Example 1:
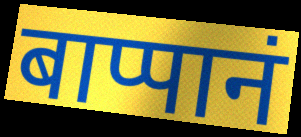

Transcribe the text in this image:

बाप्पानं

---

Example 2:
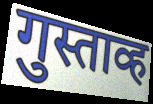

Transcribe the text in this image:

गुस्ताव्ह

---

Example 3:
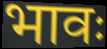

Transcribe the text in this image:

भावः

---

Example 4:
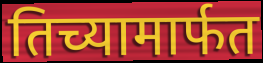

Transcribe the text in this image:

तिच्यामार्फत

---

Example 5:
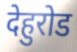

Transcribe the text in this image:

देहुरोड